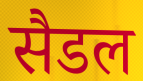
सैडल